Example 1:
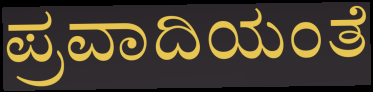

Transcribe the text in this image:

ಪ್ರವಾದಿಯಂತೆ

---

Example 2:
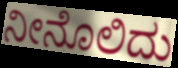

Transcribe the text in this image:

ನೀನೊಲಿದು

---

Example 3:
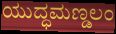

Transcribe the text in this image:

ಯುದ್ಧಮಣ್ಡಲಂ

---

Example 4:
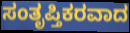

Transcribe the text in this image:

ಸಂತೃಪ್ತಿಕರವಾದ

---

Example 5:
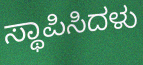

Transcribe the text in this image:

ಸ್ಥಾಪಿಸಿದಳು